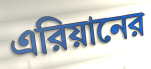
এরিয়ানের